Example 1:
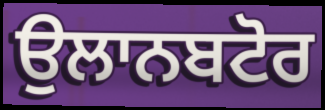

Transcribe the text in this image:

ਉਲਾਨਬਟੋਰ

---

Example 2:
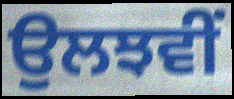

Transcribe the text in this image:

ਉਲਝਵੀਂ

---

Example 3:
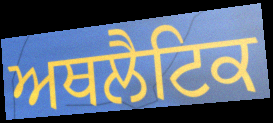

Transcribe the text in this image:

ਅਥਲੈਟਿਕ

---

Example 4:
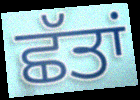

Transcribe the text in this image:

ਛੱਤਾਂ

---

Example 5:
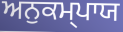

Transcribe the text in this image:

ਅਨੁਕਮ੍ਪਾਯ